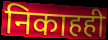
निकाहही